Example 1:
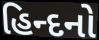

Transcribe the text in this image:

હિન્દનો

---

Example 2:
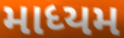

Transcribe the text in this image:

માધ્યમ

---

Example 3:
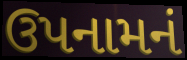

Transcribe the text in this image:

ઉપનામનં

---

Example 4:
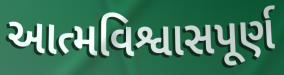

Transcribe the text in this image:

આત્મવિશ્વાસપૂર્ણ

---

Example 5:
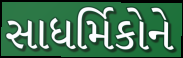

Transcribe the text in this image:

સાધર્મિકોને